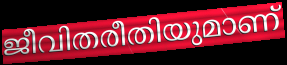
ജീവിതരീതിയുമാണ്